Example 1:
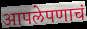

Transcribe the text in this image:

आपलेपणाचं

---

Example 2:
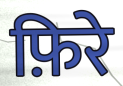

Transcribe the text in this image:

फ़िरे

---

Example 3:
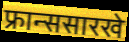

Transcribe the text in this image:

फ्रान्ससारखे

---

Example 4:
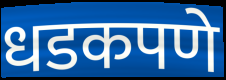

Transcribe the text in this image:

धडकपणे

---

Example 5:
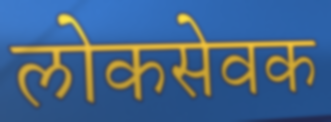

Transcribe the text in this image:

लोकसेवक